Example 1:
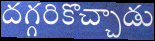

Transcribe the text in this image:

దగ్గరికొచ్చాడు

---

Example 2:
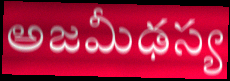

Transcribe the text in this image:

అజమీఢస్య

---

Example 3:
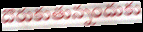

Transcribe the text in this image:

దొరుకుతున్నందుకు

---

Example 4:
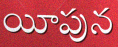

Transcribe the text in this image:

యీపున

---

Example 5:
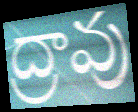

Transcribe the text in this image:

ద్రావు